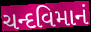
ચન્દવિમાનં